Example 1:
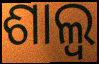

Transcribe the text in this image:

ଶାଲ୍ୱ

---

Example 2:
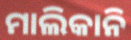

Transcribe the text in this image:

ମାଲିକାନି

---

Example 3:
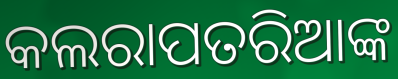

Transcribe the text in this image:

କଲରାପତରିଆଙ୍କ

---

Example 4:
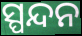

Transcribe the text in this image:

ସ୍ପନ୍ଦନ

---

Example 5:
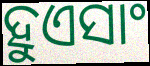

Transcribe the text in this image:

ହୁଏସାଂ